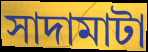
সাদামাটা